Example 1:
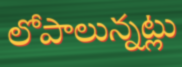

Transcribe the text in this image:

లోపాలున్నట్లు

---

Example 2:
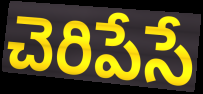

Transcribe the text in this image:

చెరిపేసే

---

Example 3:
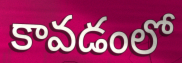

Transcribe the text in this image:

కావడంలో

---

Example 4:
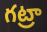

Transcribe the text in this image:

గట్రా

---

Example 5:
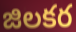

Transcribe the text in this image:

జిలకర